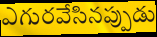
ఎగురవేసినప్పుడు